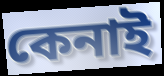
কেনাই